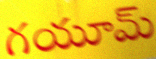
గయూమ్